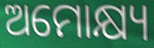
ଅମୋକ୍ଷ୍ୟ